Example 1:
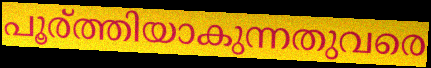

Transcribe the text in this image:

പൂര്ത്തിയാകുന്നതുവരെ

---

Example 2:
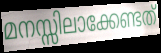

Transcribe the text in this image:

മനസ്സിലാക്കേണ്ടത്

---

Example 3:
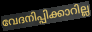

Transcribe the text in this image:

വേദനിപ്പിക്കാറില്ല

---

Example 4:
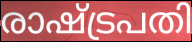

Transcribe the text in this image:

രാഷ്ട്രപതി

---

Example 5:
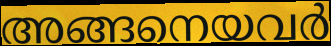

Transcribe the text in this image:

അങ്ങനെയവർ